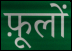
फ़ूलों